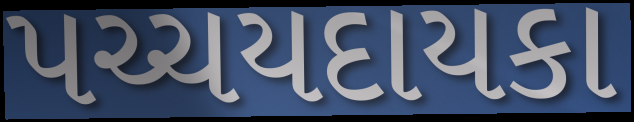
પચ્ચયદાયકા